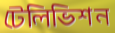
টেলিভিশন